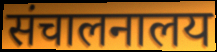
संचालनालय